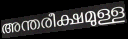
അന്തരീക്ഷമുള്ള